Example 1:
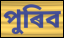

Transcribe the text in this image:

পুৰিব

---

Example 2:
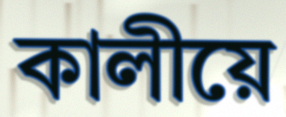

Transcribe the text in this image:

কালীয়ে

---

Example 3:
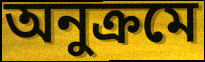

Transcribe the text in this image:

অনুক্ৰমে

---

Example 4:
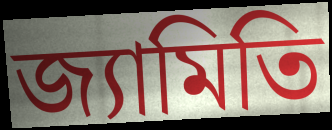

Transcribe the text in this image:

জ্যামিতি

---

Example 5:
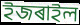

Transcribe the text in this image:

ইজৰাইল